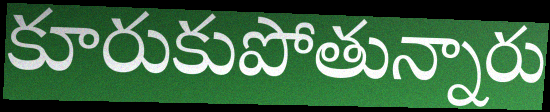
కూరుకుపోతున్నారు